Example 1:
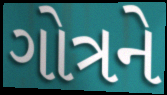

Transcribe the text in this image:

ગોત્રને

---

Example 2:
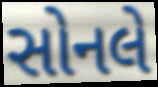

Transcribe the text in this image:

સોનલે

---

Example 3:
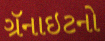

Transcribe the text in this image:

ગ્રૅનાઇટનો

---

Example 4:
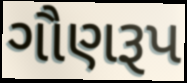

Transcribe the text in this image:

ગૌણરૂપ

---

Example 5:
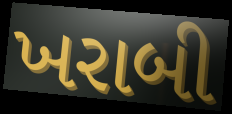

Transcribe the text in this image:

ખરાબી